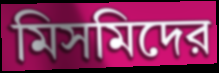
মিসমিদের